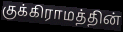
குக்கிராமத்தின்